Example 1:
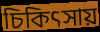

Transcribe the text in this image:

চিকিৎসায়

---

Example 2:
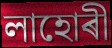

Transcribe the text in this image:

লাহোৰী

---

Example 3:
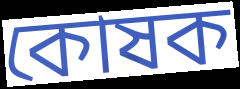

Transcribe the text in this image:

কোষক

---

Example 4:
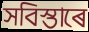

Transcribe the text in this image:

সবিস্তাৰে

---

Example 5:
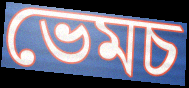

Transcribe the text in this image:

ভেমচ